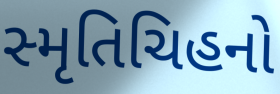
સ્મૃતિચિહનો